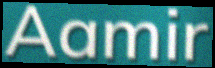
Aamir